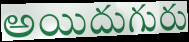
అయిదుగురు